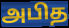
அபித